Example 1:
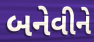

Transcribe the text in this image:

બનેવીને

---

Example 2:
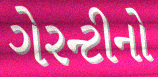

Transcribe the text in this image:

ગેરન્ટીનો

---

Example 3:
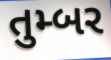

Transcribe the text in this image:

તુમ્બર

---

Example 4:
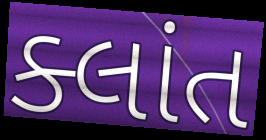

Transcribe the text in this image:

ક્લાંત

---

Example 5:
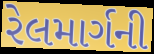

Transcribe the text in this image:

રેલમાર્ગની